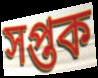
সপ্তক